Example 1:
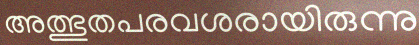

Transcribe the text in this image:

അത്ഭുതപരവശരായിരുന്നു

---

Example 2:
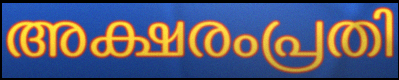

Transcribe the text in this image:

അക്ഷരംപ്രതി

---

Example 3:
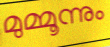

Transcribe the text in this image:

മുമ്മൂന്നും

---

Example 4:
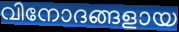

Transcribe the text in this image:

വിനോദങ്ങളായ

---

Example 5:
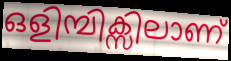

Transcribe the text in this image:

ഒളിമ്പിക്സിലാണ്